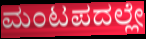
ಮಂಟಪದಲ್ಲೇ